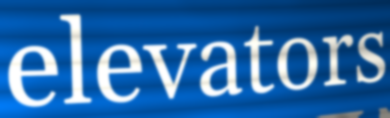
elevators